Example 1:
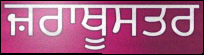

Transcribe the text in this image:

ਜ਼ਰਾਥੂਸਤਰ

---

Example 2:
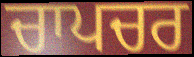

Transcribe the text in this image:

ਚਾਪਚਰ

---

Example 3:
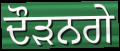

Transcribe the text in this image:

ਦੌੜਨਗੇ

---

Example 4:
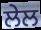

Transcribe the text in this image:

ਲੇਲ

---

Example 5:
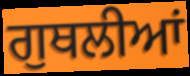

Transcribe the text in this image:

ਗੁਥਲੀਆਂ